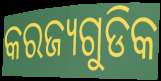
କରଜ୍ୟଗୁଡିକ